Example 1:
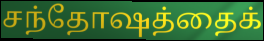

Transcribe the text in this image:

சந்தோஷத்தைக்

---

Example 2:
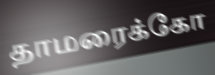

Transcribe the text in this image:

தாமரைக்கோ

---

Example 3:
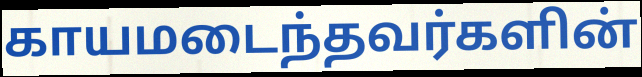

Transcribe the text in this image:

காயமடைந்தவர்களின்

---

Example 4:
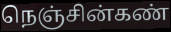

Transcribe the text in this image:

நெஞ்சின்கண்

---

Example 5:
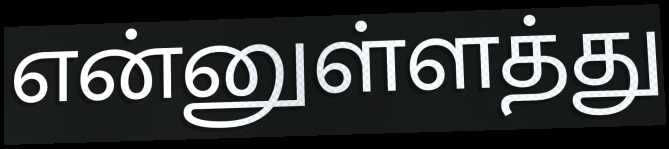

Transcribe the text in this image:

என்னுள்ளத்து